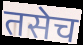
तसेच